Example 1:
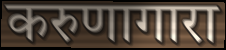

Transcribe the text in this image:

करुणागारा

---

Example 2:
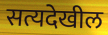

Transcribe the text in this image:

सत्यदेखील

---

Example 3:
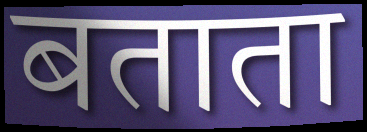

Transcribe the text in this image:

बताता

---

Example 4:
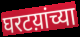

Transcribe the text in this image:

घरटय़ांच्या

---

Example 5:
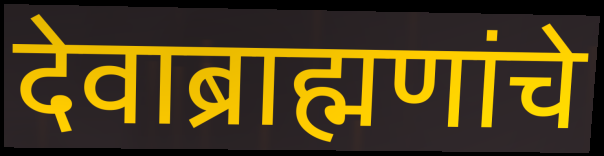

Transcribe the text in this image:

देवाब्राह्मणांचे